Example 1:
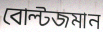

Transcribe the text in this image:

বোল্টজমান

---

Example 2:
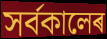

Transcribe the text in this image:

সৰ্বকালেৰ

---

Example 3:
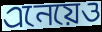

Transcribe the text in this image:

এনেয়েও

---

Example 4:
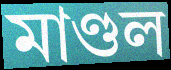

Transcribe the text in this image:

মাণ্ডল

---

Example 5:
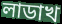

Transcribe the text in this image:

লাডাখ